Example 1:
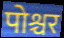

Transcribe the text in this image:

पोश्चर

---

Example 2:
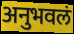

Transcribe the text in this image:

अनुभवलं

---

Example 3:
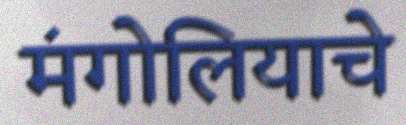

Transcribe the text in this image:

मंगोलियाचे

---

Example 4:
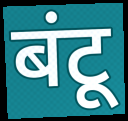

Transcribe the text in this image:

बंटू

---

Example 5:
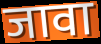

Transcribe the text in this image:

जावा